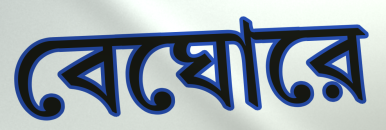
বেঘোরে